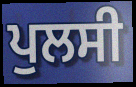
ਪੁਲਸੀ